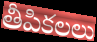
తీపికలలు